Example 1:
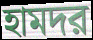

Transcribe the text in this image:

হামদর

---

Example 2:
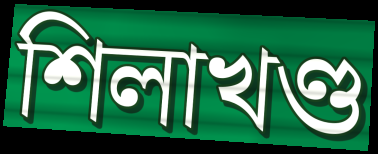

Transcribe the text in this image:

শিলাখণ্ড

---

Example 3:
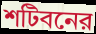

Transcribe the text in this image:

শটিবনের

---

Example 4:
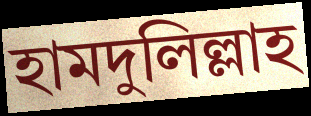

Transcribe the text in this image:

হামদুলিল্লাহ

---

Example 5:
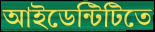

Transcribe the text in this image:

আইডেন্টিটিতে